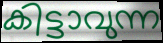
കിട്ടാവുന്ന